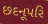
છદનૂપરિ